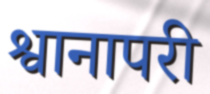
श्वानापरी